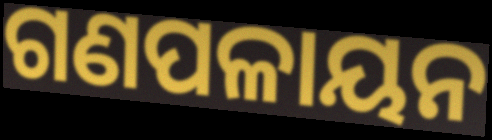
ଗଣପଳାୟନ